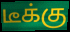
டீக்கு